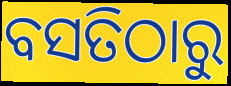
ବସତିଠାରୁ